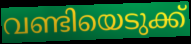
വണ്ടിയെടുക്ക്